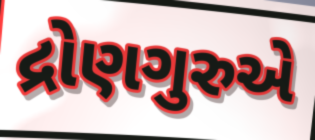
દ્રોણગુરુએ